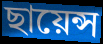
ছায়েন্স